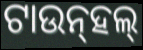
ଟାଉନ୍‌ହଲ୍